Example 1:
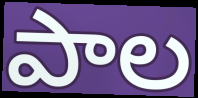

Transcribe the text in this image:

పాల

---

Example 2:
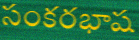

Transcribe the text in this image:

సంకరభాష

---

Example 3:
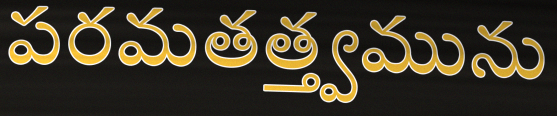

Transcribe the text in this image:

పరమతత్త్వమును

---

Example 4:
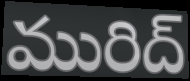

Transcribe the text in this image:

మురిద్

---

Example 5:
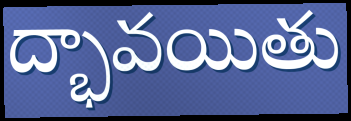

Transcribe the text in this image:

ద్భావయితు